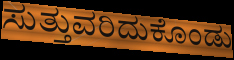
ಸುತ್ತುವರಿದುಕೊಂಡು